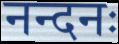
नन्दनः